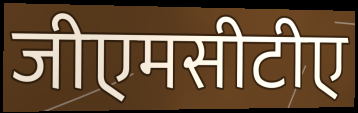
जीएमसीटीए